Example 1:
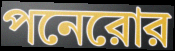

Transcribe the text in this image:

পনেরোর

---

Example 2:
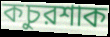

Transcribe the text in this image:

কচুরশাক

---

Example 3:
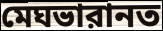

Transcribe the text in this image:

মেঘভারানত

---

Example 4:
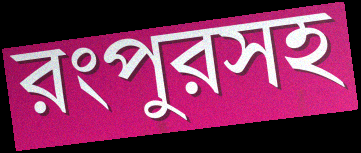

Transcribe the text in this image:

রংপুরসহ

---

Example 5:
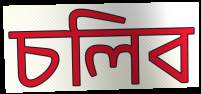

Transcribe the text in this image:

চলিব